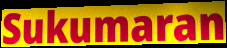
Sukumaran